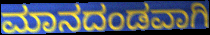
ಮಾನದಂಡವಾಗಿ